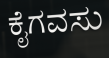
ಕೈಗವಸು